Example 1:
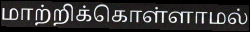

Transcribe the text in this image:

மாற்றிக்கொள்ளாமல்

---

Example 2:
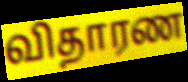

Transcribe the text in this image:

விதாரண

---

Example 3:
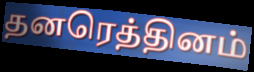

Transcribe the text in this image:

தனரெத்தினம்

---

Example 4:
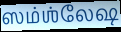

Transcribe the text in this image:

ஸம்ஶ்லேஷ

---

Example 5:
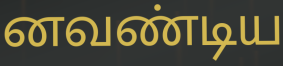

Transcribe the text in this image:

னவண்டிய